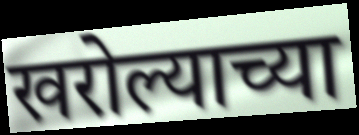
खरोल्याच्या